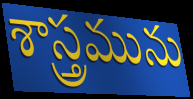
శాస్త్రమును